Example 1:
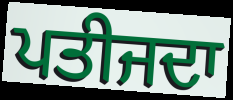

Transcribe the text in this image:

ਪਤੀਜਦਾ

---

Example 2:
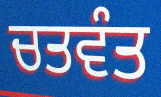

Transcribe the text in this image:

ਚਤਵੰਤ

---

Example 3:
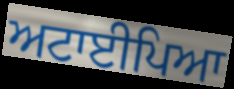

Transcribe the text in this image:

ਅਟਾਈਪਿਆ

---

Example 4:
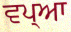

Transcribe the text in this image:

ਵਪ੍ਆ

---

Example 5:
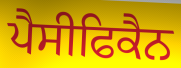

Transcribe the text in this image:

ਪੈਸੀਫਿਕੈਨ